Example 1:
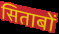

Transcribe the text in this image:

सिताबों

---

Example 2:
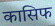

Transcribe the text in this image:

कासिफ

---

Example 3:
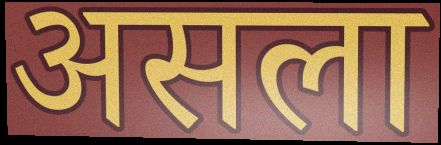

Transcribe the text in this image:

असला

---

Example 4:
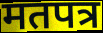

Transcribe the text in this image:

मतपत्र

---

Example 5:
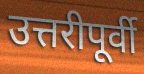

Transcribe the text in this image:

उत्तरीपूर्वी